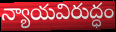
న్యాయవిరుద్ధం